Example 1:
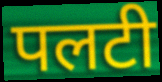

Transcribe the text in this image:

पलटी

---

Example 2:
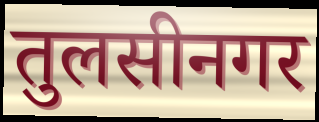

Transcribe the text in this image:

तुलसीनगर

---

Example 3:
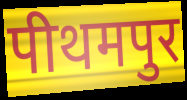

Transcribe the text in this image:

पीथमपुर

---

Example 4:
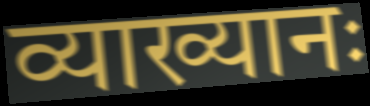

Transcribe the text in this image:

व्याख्यानः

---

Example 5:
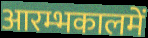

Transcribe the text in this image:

आरम्भकालमें